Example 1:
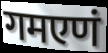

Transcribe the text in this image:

गमएणं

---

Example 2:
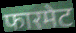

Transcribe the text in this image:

फारमेट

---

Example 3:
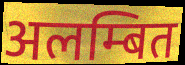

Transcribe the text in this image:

अलम्बित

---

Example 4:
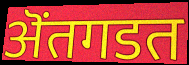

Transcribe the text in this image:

ऄंतगडत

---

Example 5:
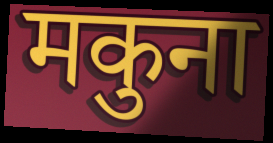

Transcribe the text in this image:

मकुना